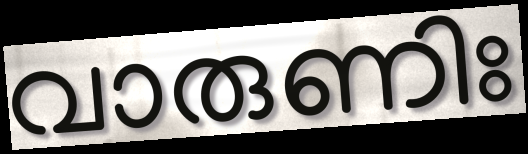
വാരുണിഃ